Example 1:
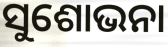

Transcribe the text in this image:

ସୁଶୋଭନା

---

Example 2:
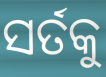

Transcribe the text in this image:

ସର୍ତକୁ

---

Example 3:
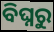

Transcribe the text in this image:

ବିଘ୍ନରୁ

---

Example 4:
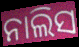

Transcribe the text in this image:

ନାଲିସ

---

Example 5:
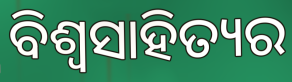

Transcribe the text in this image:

ବିଶ୍ୱସାହିତ୍ୟର